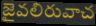
జైవలిరువాచ